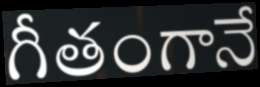
గీతంగానే